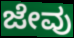
ಜೇವು